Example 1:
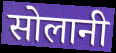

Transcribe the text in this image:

सोलानी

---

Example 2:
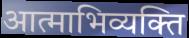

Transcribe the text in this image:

आत्माभिव्यक्ति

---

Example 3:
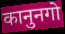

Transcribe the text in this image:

कानुनगो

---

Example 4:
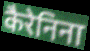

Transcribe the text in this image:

कैरेनिना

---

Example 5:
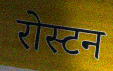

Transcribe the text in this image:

रोस्टन